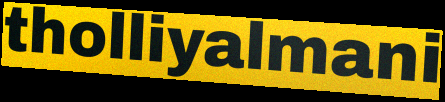
tholliyalmani